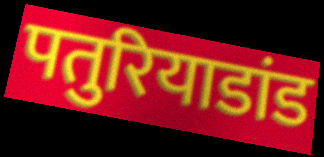
पतुरियाडांड